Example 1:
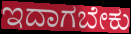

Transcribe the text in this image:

ಇದಾಗಬೇಕು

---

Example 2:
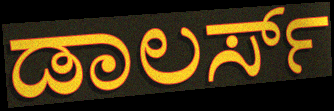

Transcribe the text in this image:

ಡಾಲರ್ಸ್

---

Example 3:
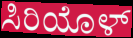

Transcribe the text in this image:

ಸಿರಿಯೊಳ್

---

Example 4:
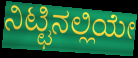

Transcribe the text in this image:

ನಿಟ್ಟಿನಲ್ಲಿಯೇ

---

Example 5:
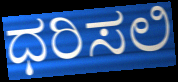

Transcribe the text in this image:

ಧರಿಸಲಿ